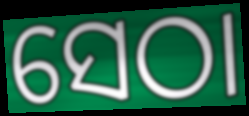
ସେଠା